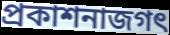
প্রকাশনাজগৎ